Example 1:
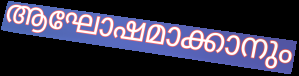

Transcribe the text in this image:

ആഘോഷമാക്കാനും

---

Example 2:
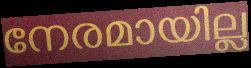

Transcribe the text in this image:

നേരമായില്ല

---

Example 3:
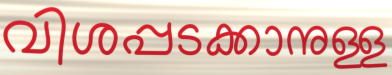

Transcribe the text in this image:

വിശപ്പടക്കാനുള്ള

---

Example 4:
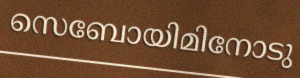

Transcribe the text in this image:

സെബോയിമിനോടു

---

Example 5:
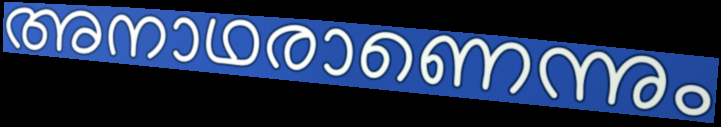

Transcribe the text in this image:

അനാഥരാണെന്നും